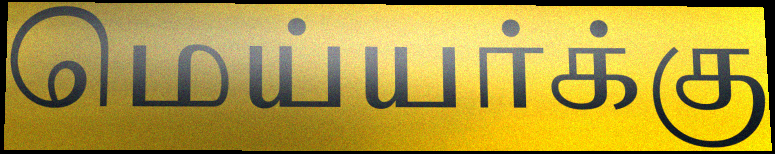
மெய்யர்க்கு